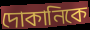
দোকানিকে